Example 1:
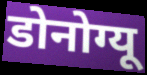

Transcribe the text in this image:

डोनोग्यू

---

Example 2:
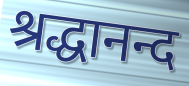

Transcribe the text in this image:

श्रद्धानन्द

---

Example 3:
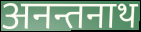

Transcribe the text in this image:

अनन्तनाथ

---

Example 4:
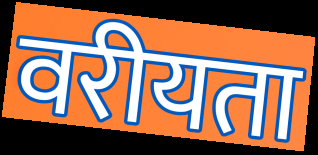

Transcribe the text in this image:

वरीयता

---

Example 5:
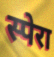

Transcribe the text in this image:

स्पेरा